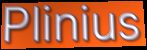
Plinius